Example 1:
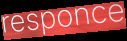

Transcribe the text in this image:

responce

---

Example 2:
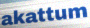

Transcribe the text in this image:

akattum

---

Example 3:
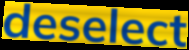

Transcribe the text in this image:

deselect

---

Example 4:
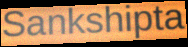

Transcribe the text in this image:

Sankshipta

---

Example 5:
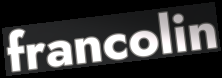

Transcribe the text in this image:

francolin